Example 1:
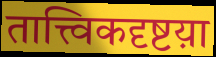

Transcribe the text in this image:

तात्त्विकदृष्टय़ा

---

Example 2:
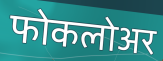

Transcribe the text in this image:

फोकलोअर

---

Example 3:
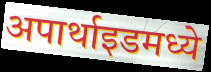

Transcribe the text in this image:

अपार्थाइडमध्ये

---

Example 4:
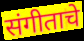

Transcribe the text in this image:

संगीताचे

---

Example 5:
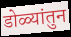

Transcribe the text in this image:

डोळ्यांतुन